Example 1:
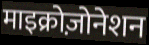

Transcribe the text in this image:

माइक्रोज़ोनेशन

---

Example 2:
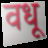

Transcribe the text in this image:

वधू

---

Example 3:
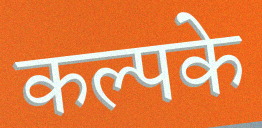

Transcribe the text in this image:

कल्पके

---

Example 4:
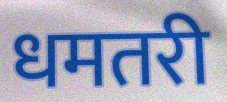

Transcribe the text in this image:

धमतरी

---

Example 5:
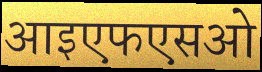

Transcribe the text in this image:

आइएफएसओ